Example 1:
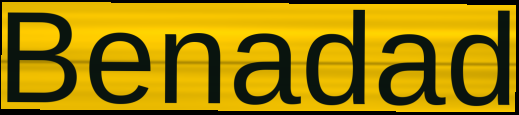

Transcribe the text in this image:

Benadad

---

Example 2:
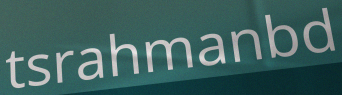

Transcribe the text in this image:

tsrahmanbd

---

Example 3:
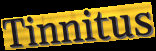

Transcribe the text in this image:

Tinnitus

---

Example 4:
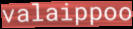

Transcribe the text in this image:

valaippoo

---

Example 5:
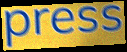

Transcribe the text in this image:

press